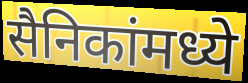
सैनिकांमध्ये